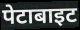
पेटाबाइट